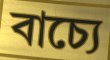
বাচ্যে